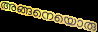
അങ്ങനെയൊരു